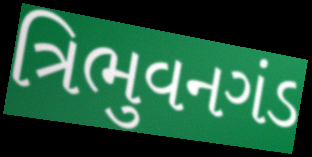
ત્રિભુવનગંડ